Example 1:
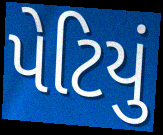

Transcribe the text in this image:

પેટિયું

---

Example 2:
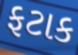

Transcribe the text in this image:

ફટાક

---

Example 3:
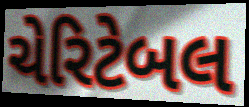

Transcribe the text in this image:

ચેરિટેબલ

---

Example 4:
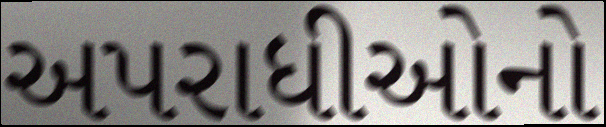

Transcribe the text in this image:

અપરાધીઓનો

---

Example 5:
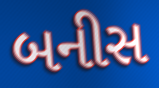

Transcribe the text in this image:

બનીસ